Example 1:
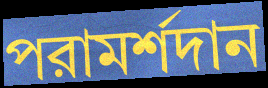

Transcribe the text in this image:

পরামর্শদান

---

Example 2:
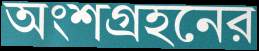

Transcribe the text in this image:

অংশগ্রহনের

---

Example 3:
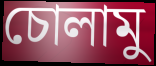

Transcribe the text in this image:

চোলামু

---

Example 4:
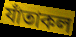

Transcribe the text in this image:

যাঁতাকল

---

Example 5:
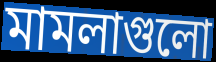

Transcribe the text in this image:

মামলাগুলো